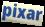
pixar